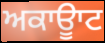
ਅਕਾਊਾਟ